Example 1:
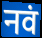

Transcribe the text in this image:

नवं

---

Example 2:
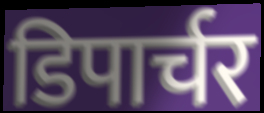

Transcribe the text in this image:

डिपार्चर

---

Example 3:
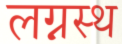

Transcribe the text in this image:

लग्नस्थ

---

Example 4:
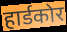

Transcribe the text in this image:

हार्डकोर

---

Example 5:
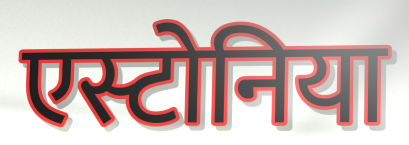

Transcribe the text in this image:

एस्‍टोनिया